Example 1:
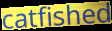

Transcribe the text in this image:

catfished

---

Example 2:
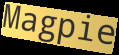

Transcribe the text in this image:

Magpie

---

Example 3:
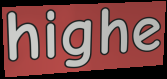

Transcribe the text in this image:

highe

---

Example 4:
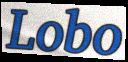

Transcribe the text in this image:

Lobo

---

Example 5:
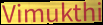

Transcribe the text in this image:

Vimukthi